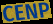
CENP